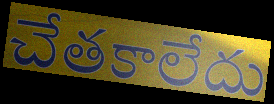
చేతకాలేదు